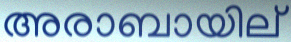
അരാബായില്